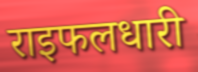
राइफलधारी